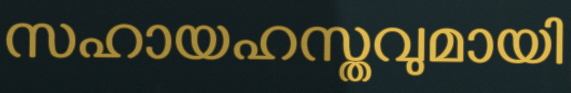
സഹായഹസ്തവുമായി